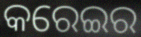
କରେଇର